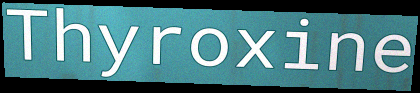
Thyroxine